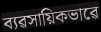
ব্যৱসায়িকভাৱে